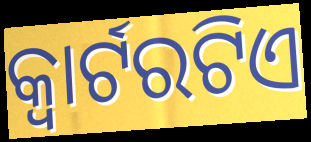
କ୍ୱାର୍ଟରଟିଏ